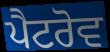
ਪੈਟਰੋਵ